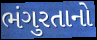
ભંગુરતાનો